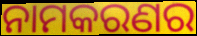
ନାମକରଣର